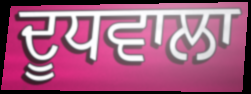
ਦੂਧਵਾਲਾ